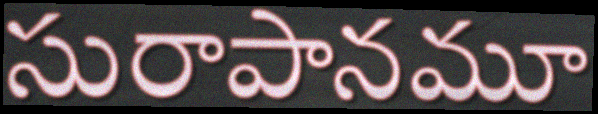
సురాపానమూ